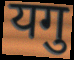
यगु